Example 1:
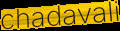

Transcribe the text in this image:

chadavali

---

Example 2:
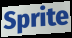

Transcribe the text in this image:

Sprite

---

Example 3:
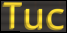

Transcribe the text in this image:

Tuc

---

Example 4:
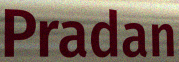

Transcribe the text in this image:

Pradan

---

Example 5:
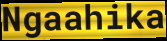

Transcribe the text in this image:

Ngaahika